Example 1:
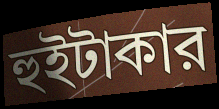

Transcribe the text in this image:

হুইটাকার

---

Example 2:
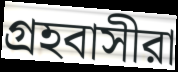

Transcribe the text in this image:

গ্রহবাসীরা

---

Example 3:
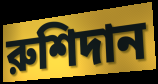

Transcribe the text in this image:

রুশিদান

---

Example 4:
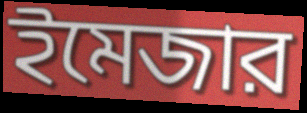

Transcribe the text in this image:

ইমেজার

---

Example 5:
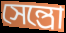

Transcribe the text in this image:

সেন্ত্রো